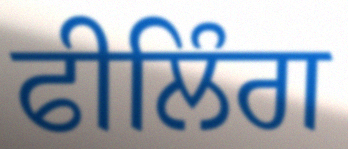
ਫੀਲਿੰਗ